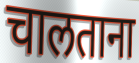
चालताना